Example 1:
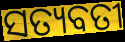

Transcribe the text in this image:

ସତ୍ୟବତୀ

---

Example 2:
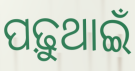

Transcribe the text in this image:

ପଢ଼ୁଥାଇଁ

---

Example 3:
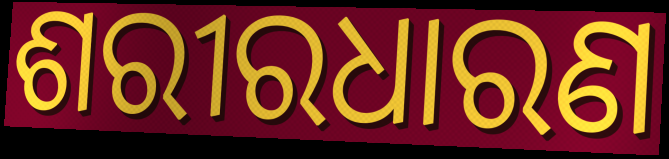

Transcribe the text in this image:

ଶରୀରଧାରଣ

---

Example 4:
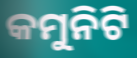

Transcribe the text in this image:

କମୁନିଟି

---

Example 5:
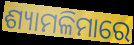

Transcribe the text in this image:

ଶ୍ୟାମଳିମାରେ